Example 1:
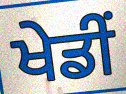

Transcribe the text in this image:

ਖੇਡੀਂ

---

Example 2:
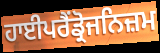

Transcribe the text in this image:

ਹਾਈਪਰੈਂਡ੍ਰੋਜਨਿਜ਼ਮ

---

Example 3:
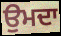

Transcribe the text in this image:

ਉਮਦਾ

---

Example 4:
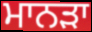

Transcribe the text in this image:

ਮਾਨੜਾ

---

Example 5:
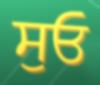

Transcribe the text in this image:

ਸੁਓ